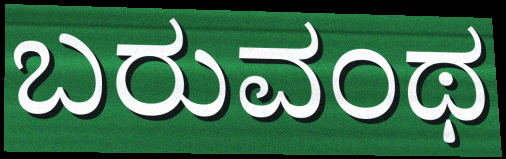
ಬರುವಂಥ